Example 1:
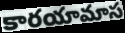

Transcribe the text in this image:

కారయామాస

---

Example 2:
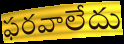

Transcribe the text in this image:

ఫరవాలేదు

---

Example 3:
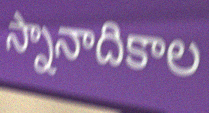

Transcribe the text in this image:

స్నానాదికాల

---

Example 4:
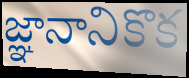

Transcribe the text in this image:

జ్ఞానానికొక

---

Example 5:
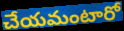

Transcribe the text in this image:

చేయమంటారో